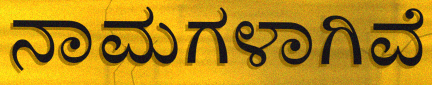
ನಾಮಗಳಾಗಿವೆ